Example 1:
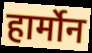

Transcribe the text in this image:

हार्मोन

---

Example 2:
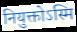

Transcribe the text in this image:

नियुक्तोऽस्मि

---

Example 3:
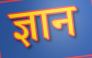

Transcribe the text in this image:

ज्ञान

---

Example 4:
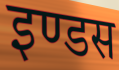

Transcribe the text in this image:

इण्डस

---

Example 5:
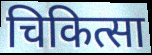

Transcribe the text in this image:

चिकित्सा